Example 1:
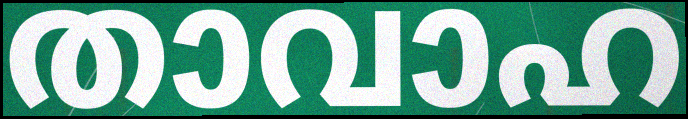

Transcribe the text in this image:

താവാഹ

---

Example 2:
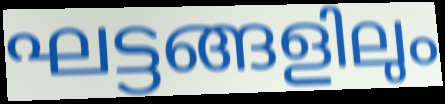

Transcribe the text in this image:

ഘട്ടങ്ങളിലും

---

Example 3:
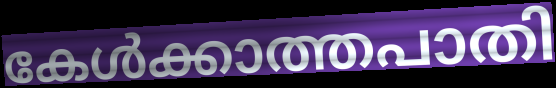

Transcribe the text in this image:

കേൾക്കാത്തപാതി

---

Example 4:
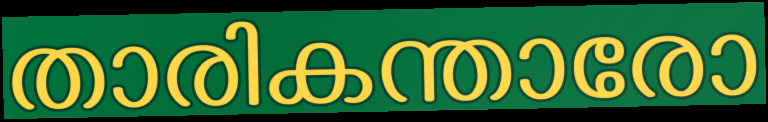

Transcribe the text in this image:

താരികന്താരോ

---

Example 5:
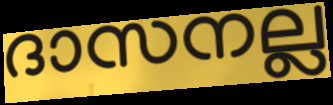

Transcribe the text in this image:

ദാസനല്ല